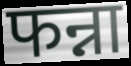
फन्ना